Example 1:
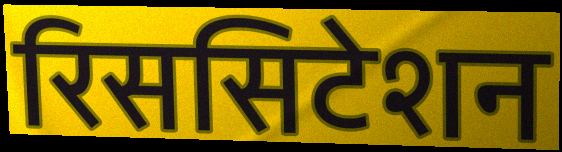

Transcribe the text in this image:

रिससिटेशन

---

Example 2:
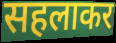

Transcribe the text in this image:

सहलाकर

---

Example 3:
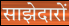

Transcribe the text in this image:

साझेदारों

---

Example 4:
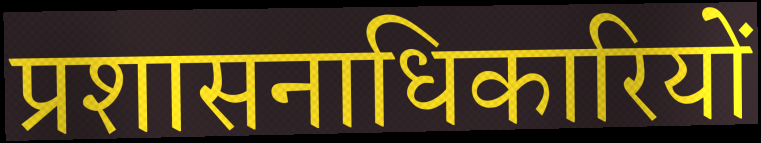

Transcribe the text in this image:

प्रशासनाधिकारियों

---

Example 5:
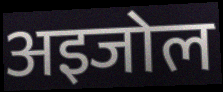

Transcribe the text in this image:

अइजोल